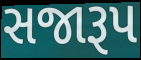
સજારૂપ